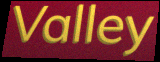
Valley